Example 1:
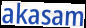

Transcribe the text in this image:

akasam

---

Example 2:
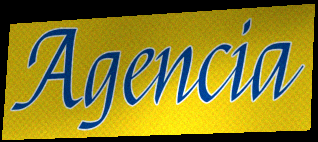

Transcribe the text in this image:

Agencia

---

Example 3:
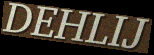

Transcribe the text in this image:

DEHLIJ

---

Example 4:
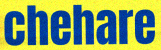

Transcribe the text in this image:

chehare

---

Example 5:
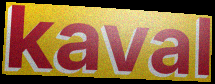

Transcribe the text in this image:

kaval